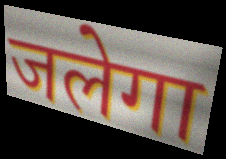
जलेगा